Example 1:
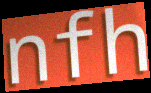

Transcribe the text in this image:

nfh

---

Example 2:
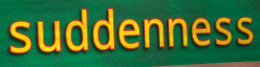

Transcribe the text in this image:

suddenness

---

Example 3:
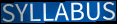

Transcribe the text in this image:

SYLLABUS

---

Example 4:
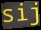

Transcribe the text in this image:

sij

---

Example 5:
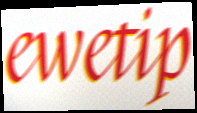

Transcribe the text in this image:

ewetip